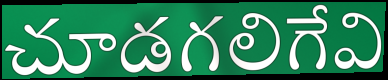
చూడగలిగేవి